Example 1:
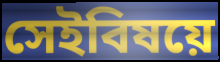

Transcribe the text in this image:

সেইবিষয়ে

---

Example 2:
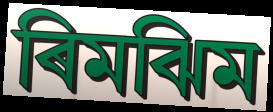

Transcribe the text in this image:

ৰিমঝিম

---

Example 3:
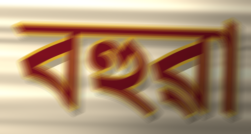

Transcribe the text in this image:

বহুৱা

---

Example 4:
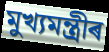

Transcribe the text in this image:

মুখ্যমন্ত্ৰীৰ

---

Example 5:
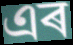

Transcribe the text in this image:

এৰ